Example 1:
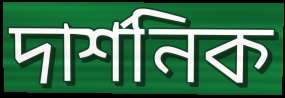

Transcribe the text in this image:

দার্শনিক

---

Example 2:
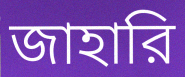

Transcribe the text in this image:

জাহারি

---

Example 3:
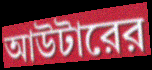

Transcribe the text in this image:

আউটারের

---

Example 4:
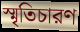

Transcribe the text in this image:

স্মৃতিচারণ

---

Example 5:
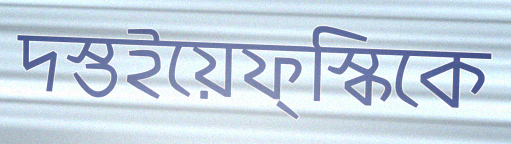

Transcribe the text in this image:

দস্তইয়েফ্স্কিকে